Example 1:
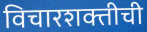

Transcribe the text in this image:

विचारशक्तीची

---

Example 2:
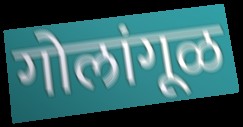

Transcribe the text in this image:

गोलांगूळ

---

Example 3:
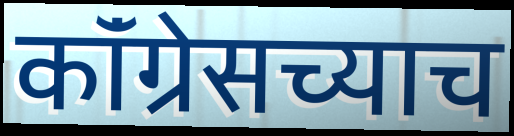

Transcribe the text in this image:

कॉंग्रेसच्याच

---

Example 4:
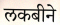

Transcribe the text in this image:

लकबीने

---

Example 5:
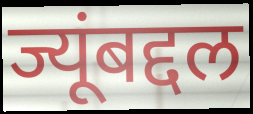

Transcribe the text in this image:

ज्यूंबद्दल